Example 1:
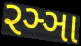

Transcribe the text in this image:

રઞ્ઞા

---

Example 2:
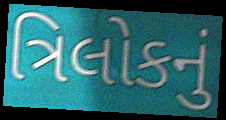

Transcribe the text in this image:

ત્રિલોકનું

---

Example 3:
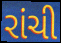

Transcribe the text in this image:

રાંચી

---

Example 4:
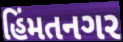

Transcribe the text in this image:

હિંમતનગર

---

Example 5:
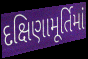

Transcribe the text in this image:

દક્ષિણામૂર્તિમાં